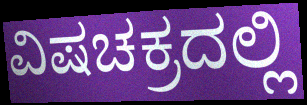
ವಿಷಚಕ್ರದಲ್ಲಿ